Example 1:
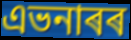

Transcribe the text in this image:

এভনাৰৰ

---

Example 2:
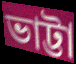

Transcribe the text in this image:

ভাট্টা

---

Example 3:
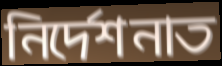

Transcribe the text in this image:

নিৰ্দেশনাত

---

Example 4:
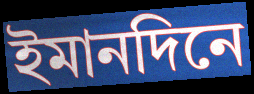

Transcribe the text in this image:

ইমানদিনে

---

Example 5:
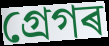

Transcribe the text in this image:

গ্ৰেগৰ